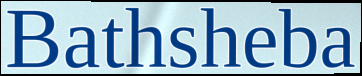
Bathsheba